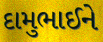
દામુભાઈને